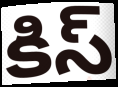
కిస్